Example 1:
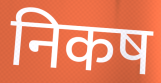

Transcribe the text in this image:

निकष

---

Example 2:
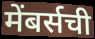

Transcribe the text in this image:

मेंबर्सची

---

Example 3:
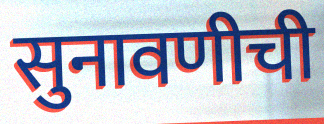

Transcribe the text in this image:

सुनावणीची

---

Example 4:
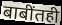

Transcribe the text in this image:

बाबींतही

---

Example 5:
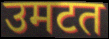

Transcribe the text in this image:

उमटत